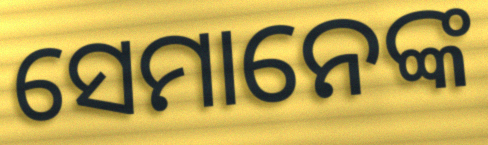
ସେମାନେଙ୍କ